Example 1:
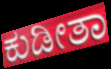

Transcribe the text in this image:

ಕುಡೀತಾ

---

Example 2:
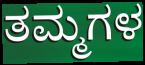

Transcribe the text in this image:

ತಮ್ಮಗಳ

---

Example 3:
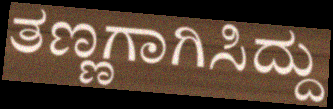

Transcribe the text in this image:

ತಣ್ಣಗಾಗಿಸಿದ್ದು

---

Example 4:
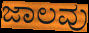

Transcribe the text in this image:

ಜಾಲವು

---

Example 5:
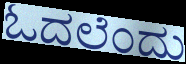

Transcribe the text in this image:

ಓದಲೆಂದು